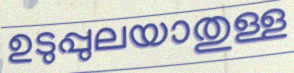
ഉടുപ്പുലയാതുള്ള